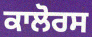
ਕਾਲੋਰਸ